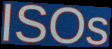
ISOs